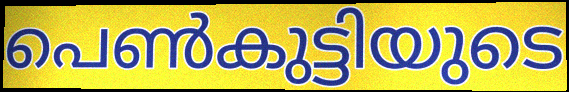
പെൺകുട്ടിയുടെ